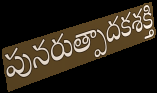
పునరుత్పాదకశక్తి